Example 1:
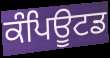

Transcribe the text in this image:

ਕੰਪਿਊਟਡ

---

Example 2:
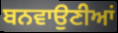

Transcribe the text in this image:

ਬਨਵਾਉਣੀਆਂ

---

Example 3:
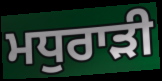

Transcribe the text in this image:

ਮਧੁਰਾੜੀ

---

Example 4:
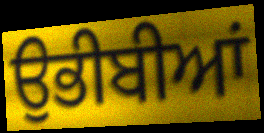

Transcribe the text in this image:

ਉਭੀਬੀਆਂ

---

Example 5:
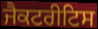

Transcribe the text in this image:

ਜੈਕਟਰੀਟਿਸ